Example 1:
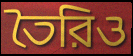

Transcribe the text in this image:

তৈরিও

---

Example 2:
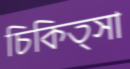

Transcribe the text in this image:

চিকিত্সা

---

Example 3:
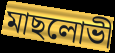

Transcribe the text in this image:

মাছলোভী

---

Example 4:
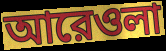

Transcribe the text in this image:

আরেওলা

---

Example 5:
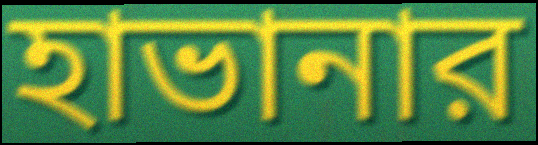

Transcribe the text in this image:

হাভানার